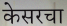
केसरचा